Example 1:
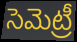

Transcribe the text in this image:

సెమెట్రీ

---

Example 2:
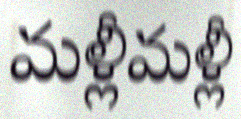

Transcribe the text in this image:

మళ్లీమళ్లీ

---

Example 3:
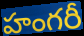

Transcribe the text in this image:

హంగరీ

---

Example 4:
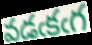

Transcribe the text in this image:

వడఁకఁగ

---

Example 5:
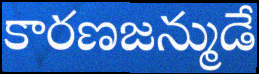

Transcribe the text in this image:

కారణజన్ముడే